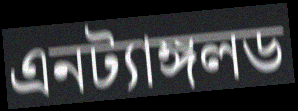
এনট্যাঙ্গলড